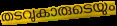
തടവുകാരുടെയും